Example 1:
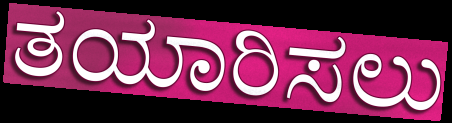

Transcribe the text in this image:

ತಯಾರಿಸಲು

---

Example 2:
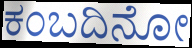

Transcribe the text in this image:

ಕಂಬದಿನೋ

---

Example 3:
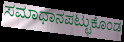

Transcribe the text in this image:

ಸಮಾಧಾನಪಟ್ಟುಕೊಂಡ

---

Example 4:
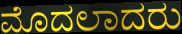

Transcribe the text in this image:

ಮೊದಲಾದರು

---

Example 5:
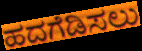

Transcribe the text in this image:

ಹದಗೆಡಿಸಲು